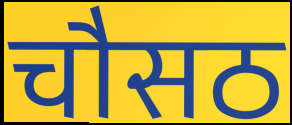
चौसठ